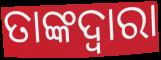
ତାଙ୍କଦ୍ଵାରା